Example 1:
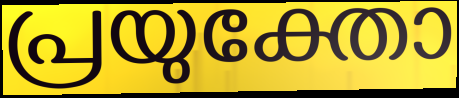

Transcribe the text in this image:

പ്രയുക്തോ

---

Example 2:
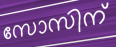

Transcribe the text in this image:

സോസിന്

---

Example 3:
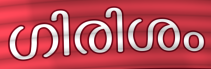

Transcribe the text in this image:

ഗിരിശം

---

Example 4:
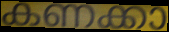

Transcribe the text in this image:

കണക്കാ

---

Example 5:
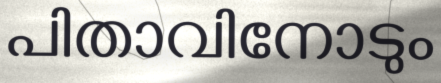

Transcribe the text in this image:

പിതാവിനോടും